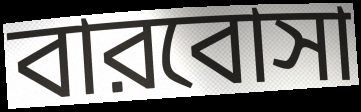
বারবোসা